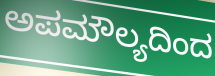
ಅಪಮೌಲ್ಯದಿಂದ